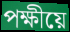
পক্ষীয়ে